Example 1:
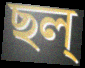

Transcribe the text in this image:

ছল্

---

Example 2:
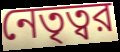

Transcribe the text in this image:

নেতৃত্বর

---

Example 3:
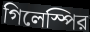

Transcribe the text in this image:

গিলেস্পির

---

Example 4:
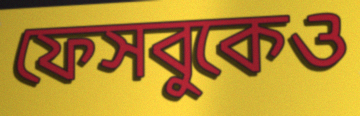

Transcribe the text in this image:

ফেসবুকেও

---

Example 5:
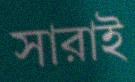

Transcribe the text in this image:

সারাই